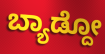
ಬ್ಯಾಡ್ದೋ